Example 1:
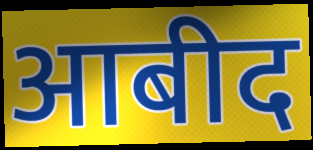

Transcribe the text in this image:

आबीद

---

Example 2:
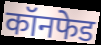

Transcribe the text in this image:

कॉनफेड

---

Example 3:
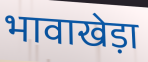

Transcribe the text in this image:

भावाखेड़ा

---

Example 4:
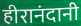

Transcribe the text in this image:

हीरानंदानी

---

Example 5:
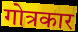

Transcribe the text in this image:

गोत्रकार